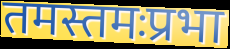
तमस्तमःप्रभा